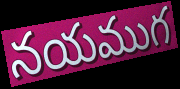
నయముగ